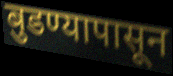
बुडण्यापासून